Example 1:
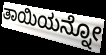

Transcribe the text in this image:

ತಾಯಿಯನ್ನೋ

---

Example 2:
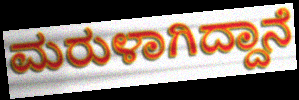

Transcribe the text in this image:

ಮರುಳಾಗಿದ್ದಾನೆ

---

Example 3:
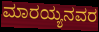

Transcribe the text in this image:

ಮಾರಯ್ಯನವರ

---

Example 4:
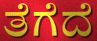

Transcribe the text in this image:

ತೆಗೆದೆ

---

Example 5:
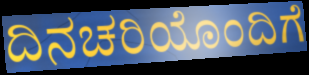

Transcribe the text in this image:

ದಿನಚರಿಯೊಂದಿಗೆ